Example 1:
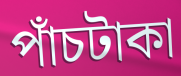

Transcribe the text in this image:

পাঁচটাকা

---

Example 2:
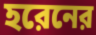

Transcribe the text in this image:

হরেনের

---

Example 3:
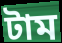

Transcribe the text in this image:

টাম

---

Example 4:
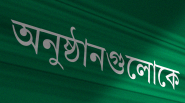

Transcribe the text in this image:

অনুষ্ঠানগুলোকে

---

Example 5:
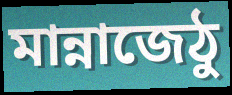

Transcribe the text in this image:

মান্নাজেঠু